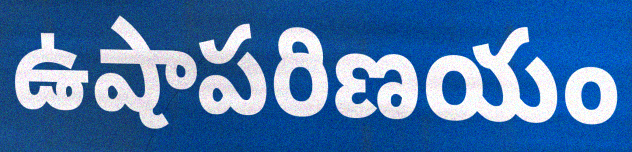
ఉషాపరిణయం